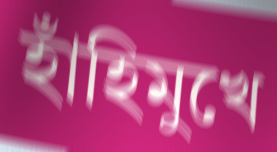
হাঁহিমুখে